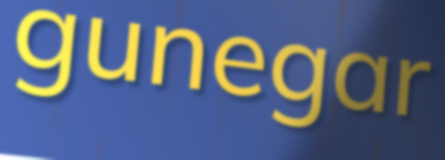
gunegar